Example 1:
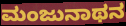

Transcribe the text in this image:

ಮಂಜುನಾಥನ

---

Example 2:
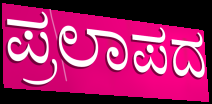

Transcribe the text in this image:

ಪ್ರಲಾಪದ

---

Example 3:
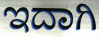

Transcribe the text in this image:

ಇದಾಗಿ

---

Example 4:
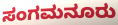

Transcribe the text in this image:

ಸಂಗಮನೂರು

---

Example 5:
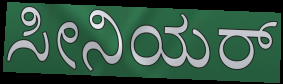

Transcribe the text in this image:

ಸೀನಿಯರ್